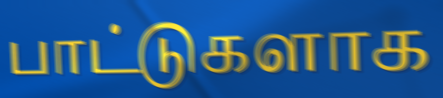
பாட்டுகளாக